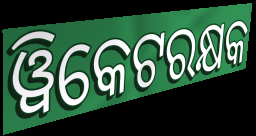
ୱିକେଟରକ୍ଷକ